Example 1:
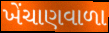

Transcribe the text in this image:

ખેંચાણવાળા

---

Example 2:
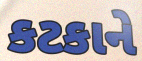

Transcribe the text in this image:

કટકાને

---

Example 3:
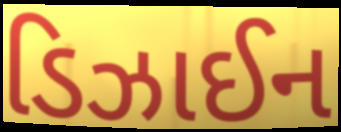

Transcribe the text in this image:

ડિઝાઈન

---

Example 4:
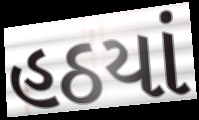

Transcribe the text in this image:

હઠયાં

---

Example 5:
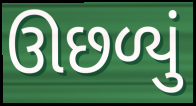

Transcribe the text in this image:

ઊછળ્યું